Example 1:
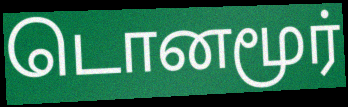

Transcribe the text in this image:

டொனமூர்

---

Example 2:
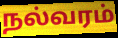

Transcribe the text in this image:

நல்வரம்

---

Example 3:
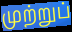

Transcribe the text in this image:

முற்றுப்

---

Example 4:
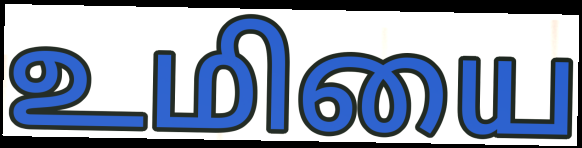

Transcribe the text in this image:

உமியை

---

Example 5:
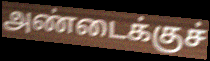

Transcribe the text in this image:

அண்டைக்குச்